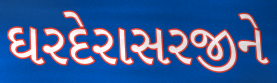
ઘરદેરાસરજીને